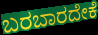
ಬರಬಾರದೇಕೆ